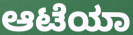
ಆಟೆಯಾ